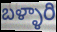
బళ్ళారి